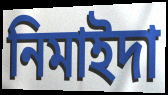
নিমাইদা